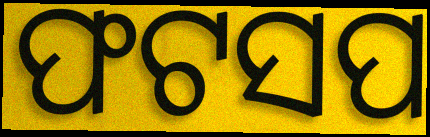
ଫଟସପ